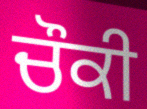
ਚੌਕੀ